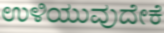
ಉಳಿಯುವುದೇಕೆ